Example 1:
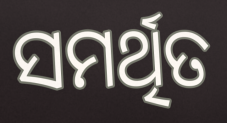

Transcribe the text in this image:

ସମର୍ଥିତ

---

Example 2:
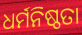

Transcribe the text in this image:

ଧର୍ମନିଷ୍ଠତା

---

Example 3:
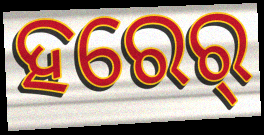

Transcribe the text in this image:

ହରେର୍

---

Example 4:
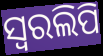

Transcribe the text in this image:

ସ୍ଵରଲିପି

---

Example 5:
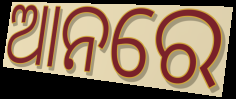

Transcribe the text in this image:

ଆନରେ